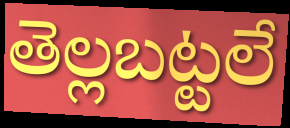
తెల్లబట్టలే